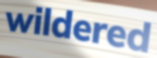
wildered